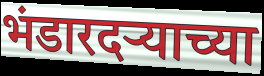
भंडारदर्‍याच्या